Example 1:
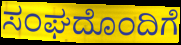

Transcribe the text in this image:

ಸಂಘದೊಂದಿಗೆ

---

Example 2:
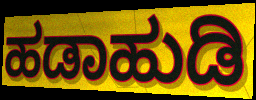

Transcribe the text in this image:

ಹಡಾಹುಡಿ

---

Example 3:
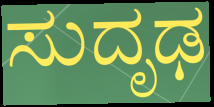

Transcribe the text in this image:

ಸುದೃಢ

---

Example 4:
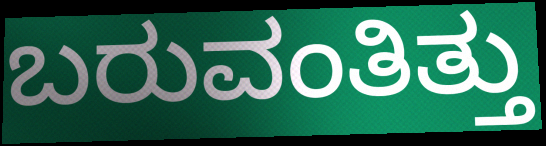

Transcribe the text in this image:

ಬರುವಂತಿತ್ತು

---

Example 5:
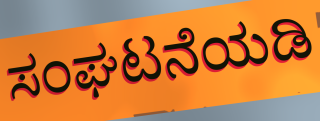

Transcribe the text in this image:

ಸಂಘಟನೆಯಡಿ